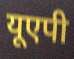
यूएपी